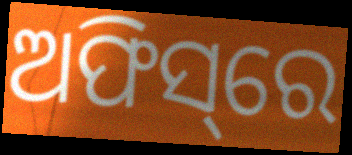
ଅଫିସ୍‌ରେ